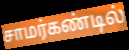
சாமர்கண்டில்